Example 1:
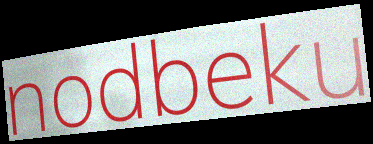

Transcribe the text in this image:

nodbeku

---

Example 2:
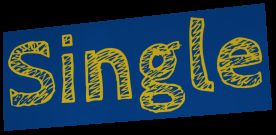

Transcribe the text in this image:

Single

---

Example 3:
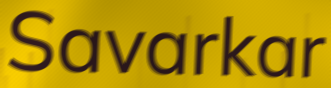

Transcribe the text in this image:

Savarkar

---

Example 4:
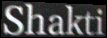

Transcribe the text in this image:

Shakti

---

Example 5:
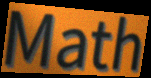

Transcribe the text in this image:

Math